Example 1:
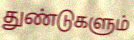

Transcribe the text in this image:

துண்டுகளும்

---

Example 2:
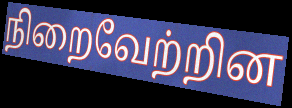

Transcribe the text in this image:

நிறைவேற்றின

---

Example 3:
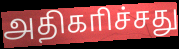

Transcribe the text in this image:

அதிகரிச்சது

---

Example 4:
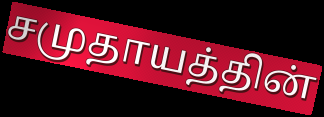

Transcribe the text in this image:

சமுதாயத்தின்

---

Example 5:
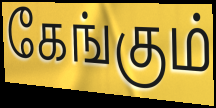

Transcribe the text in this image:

கேங்கும்